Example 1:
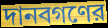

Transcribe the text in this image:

দানবগণের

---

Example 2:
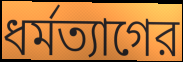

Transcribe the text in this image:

ধর্মত্যাগের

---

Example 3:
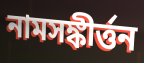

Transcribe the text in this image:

নামসঙ্কীর্ত্তন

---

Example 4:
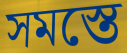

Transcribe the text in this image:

সমস্তে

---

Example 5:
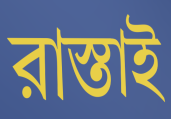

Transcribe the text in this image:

রাস্তাই